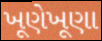
ખૂણેખૂણા